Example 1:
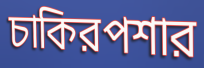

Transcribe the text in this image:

চাকিরপশার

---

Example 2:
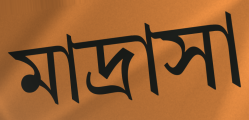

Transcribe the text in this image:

মাদ্রাসা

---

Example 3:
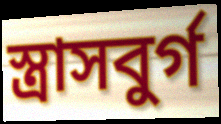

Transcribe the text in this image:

স্ত্রাসবুর্গ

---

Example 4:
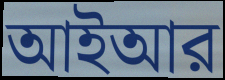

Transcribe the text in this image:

আইআর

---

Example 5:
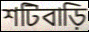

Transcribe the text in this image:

শটিবাড়ি